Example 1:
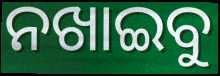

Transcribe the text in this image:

ନଖାଇବୁ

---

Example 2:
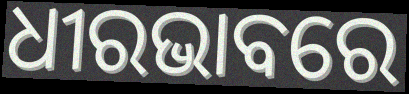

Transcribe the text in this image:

ଧୀରଭାବରେ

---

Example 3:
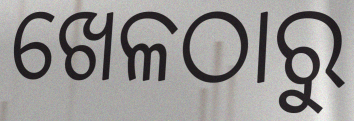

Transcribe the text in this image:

ଖେଳଠାରୁ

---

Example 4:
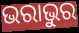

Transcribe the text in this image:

ଭରାଭୁର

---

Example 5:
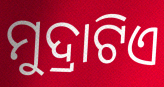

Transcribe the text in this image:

ମୁଦ୍ରାଟିଏ